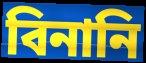
বিনানি